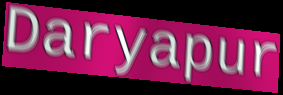
Daryapur